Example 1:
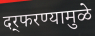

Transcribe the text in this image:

दर्फरण्यामुळे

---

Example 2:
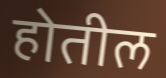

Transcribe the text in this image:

होतील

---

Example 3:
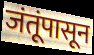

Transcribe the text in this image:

जंतूंपासून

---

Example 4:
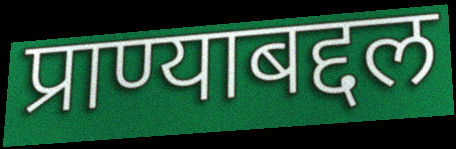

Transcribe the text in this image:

प्राण्याबद्दल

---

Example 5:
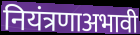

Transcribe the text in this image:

नियंत्रणाअभावी